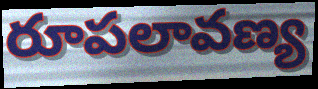
రూపలావణ్య